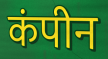
कंपीन